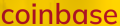
coinbase